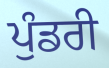
ਪੁੰਡਰੀ